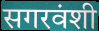
सगरवंशी